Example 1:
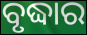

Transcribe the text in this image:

ବୃଦ୍ଧାର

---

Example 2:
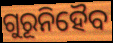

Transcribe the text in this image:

ଗୁରୂନିହୈବ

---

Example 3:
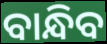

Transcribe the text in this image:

ବାନ୍ଧିବ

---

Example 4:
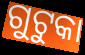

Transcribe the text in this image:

ଗୁଟୁକା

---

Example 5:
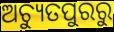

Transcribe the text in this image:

ଅଚ୍ୟୁତପୁରରୁ